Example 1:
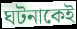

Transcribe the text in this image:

ঘটনাকেই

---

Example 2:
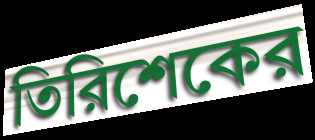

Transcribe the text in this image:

তিরিশেকের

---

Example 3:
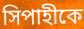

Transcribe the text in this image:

সিপাহীকে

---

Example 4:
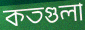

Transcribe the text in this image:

কতগুলা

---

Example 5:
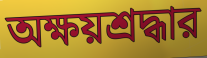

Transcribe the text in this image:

অক্ষয়শ্রদ্ধার